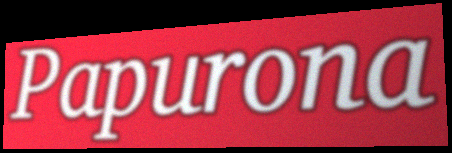
Papurona